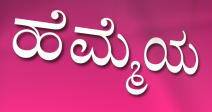
ಹೆಮ್ಮೆಯ